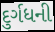
દુર્ગધની